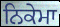
ਨਿਕੇਮਾ